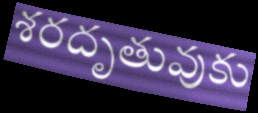
శరదృతువుకు